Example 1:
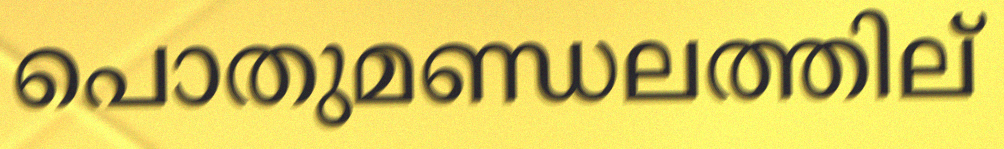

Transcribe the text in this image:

പൊതുമണ്ഡലത്തില്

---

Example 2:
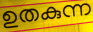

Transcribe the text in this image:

ഉതകുന്ന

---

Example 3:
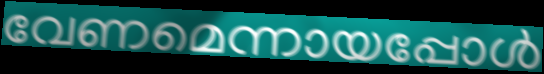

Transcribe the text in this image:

വേണമെന്നായപ്പോൾ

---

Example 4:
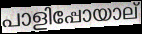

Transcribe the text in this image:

പാളിപ്പോയാല്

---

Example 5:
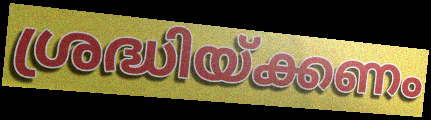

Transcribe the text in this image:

ശ്രദ്ധിയ്ക്കണം